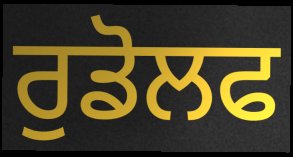
ਰੁਡੋਲਫ